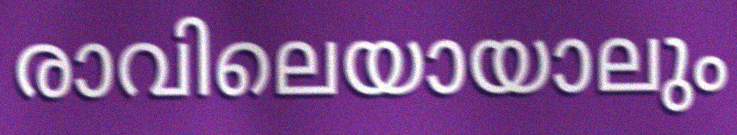
രാവിലെയായാലും